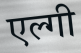
एल्गी